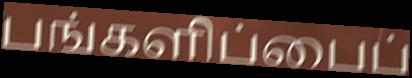
பங்களிப்பைப்